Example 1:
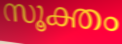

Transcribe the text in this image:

സൂക്തം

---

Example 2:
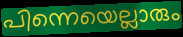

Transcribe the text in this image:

പിന്നെയെല്ലാരും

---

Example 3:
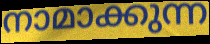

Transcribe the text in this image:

നാമാക്കുന്ന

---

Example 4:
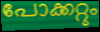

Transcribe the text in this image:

പോക്കറ്റും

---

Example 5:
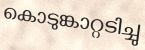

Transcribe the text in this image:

കൊടുങ്കാറ്റടിച്ചു